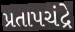
પ્રતાપચંદ્રે